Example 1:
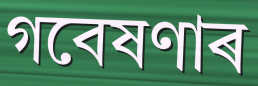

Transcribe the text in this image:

গবেষণাৰ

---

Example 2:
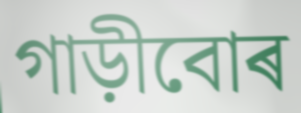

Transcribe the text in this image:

গাড়ীবোৰ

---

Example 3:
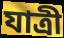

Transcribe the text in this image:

যাত্ৰী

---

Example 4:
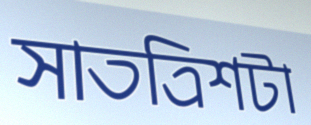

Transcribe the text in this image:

সাতত্ৰিশটা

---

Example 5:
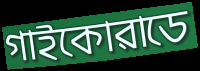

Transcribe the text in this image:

গাইকোৱাডে